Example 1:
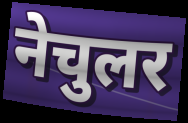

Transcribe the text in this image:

नेचुलर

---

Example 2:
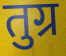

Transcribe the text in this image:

तुग्र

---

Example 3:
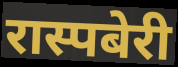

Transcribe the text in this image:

रास्पबेरी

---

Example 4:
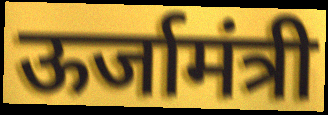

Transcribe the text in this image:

ऊर्जामंत्री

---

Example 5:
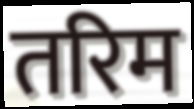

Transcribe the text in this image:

तरिम